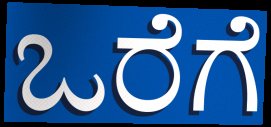
ಒರೆಗೆ